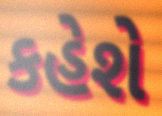
કહેશે